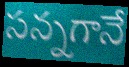
సన్నగానే